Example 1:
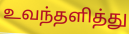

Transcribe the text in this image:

உவந்தளித்து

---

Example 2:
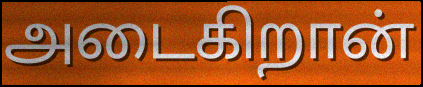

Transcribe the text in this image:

அடைகிறான்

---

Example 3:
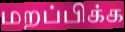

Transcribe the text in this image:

மறப்பிக்க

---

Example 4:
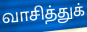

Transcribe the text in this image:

வாசித்துக்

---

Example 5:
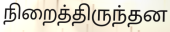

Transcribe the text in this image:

நிறைத்திருந்தன